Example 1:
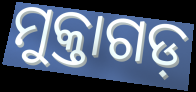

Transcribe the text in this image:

ମୁକ୍ତାଗଡ଼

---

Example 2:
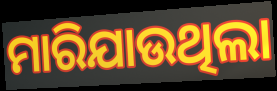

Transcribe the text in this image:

ମାରିଯାଉଥିଲା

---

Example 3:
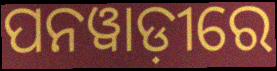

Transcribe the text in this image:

ପନୱାଡ଼ୀରେ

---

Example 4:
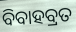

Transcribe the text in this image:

ବିବାହବ୍ରତ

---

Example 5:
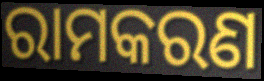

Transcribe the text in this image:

ରାମକରଣ